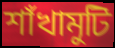
শাঁখামুটি